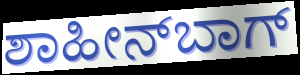
ಶಾಹೀನ್‌ಬಾಗ್